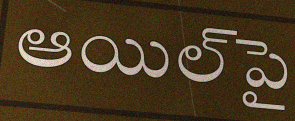
ఆయిల్‌పై